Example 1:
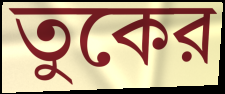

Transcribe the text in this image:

তুকের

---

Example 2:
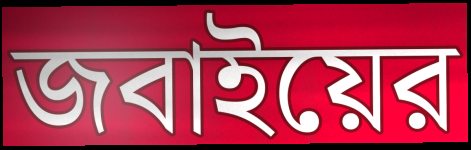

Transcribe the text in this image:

জবাইয়ের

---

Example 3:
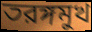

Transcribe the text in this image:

তরঙ্গমুখ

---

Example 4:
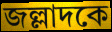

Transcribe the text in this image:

জল্লাদকে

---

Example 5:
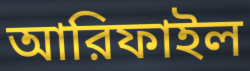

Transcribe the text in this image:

আরিফাইল